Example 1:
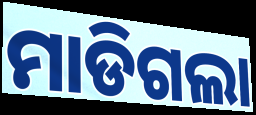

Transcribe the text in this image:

ମାଡିଗଲା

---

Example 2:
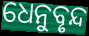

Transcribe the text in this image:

ଧେନୁବୃନ୍ଦ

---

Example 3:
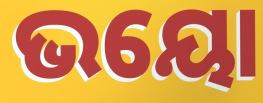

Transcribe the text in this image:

ଭୟୋ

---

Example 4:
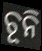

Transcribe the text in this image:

ଚୂନି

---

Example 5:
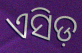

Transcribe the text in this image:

ଏସିଡ଼